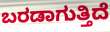
ಬರಡಾಗುತ್ತಿದೆ